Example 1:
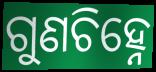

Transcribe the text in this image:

ଗୁଣଚିହ୍ନେ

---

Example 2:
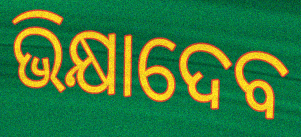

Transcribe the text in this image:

ଭିକ୍ଷାଦେବ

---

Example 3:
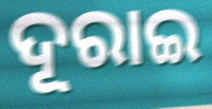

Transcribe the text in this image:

ଦୂରାଇ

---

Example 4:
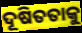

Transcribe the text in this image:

ଦୂଷିତତାକୁ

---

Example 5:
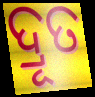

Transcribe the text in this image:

ଦ୍ରୂତ